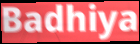
Badhiya